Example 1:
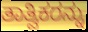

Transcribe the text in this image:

ತಾತ್ವಿಕರನ್ನು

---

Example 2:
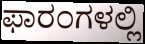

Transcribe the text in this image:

ಫಾರಂಗಳಲ್ಲಿ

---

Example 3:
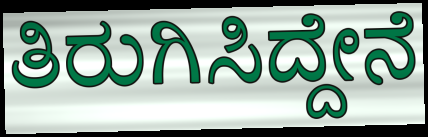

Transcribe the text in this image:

ತಿರುಗಿಸಿದ್ದೇನೆ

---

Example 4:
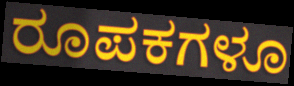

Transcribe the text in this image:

ರೂಪಕಗಳೂ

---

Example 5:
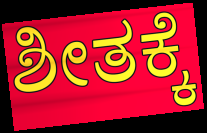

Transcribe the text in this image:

ಶೀತಕ್ಕೆ